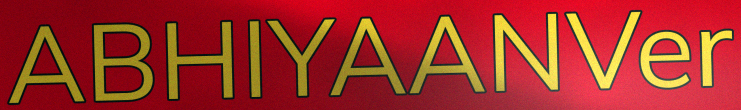
ABHIYAANVer